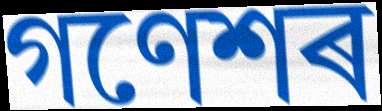
গণেশৰ